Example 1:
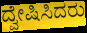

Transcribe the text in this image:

ದ್ವೇಷಿಸಿದರು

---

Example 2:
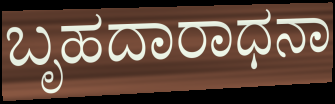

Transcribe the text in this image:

ಬೃಹದಾರಾಧನಾ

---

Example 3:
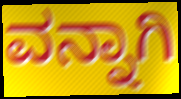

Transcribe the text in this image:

ವನ್ನಾಗಿ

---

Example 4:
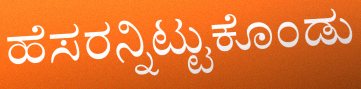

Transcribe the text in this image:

ಹೆಸರನ್ನಿಟ್ಟುಕೊಂಡು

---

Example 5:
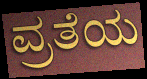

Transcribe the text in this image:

ವ್ರತೆಯ